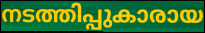
നടത്തിപ്പുകാരായ